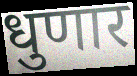
धुणार